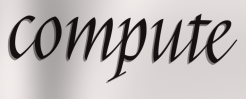
compute